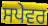
ਸਪੇਵਰ